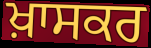
ਖ਼ਾਸਕਰ